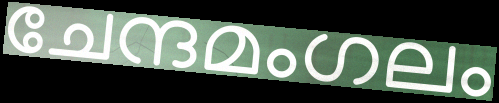
ചേന്ദമംഗലം